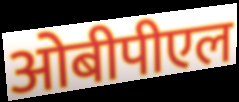
ओबीपीएल